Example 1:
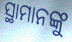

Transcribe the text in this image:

ସ୍ଥାମାନଙ୍କୁ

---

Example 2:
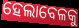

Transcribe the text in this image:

ହେଲାବେଳକୁ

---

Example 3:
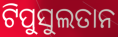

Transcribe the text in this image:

ଟିପୁସୁଲତାନ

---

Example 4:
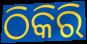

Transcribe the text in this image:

ଠିକିରି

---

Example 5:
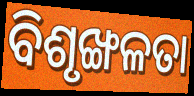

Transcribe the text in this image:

ବିଶୃଙ୍ଖଳତା